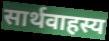
सार्थवाहस्य